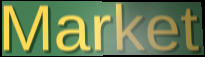
Market